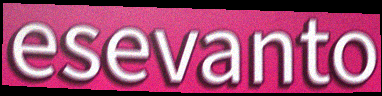
esevanto